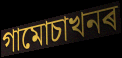
গামোচাখনৰ